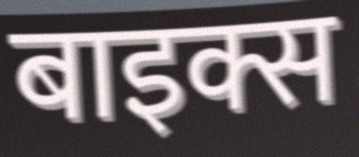
बाइक्स